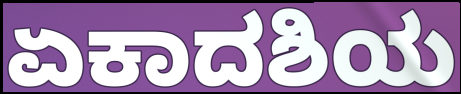
ಏಕಾದಶಿಯ